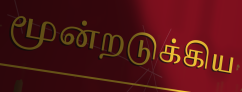
மூன்றடுக்கிய